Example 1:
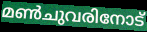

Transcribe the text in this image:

മൺചുവരിനോട്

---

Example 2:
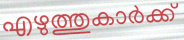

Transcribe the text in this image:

എഴുത്തുകാർക്ക്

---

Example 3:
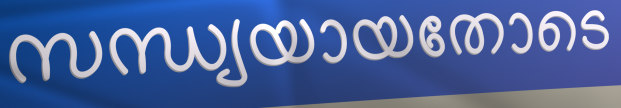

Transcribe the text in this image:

സന്ധ്യയായതോടെ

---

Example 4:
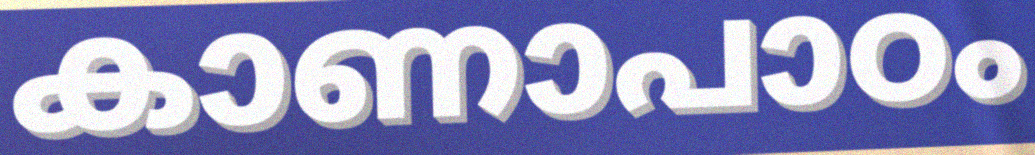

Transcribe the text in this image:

കാണാപാഠം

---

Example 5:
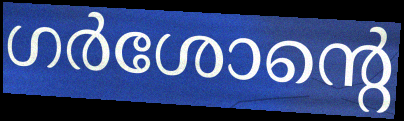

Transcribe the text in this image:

ഗർശോന്റെ